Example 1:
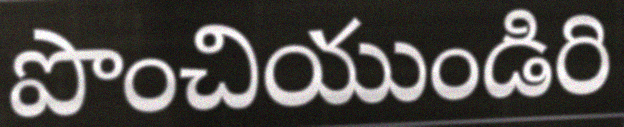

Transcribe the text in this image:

పొంచియుండిరి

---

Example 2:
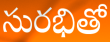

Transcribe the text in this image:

సురభితో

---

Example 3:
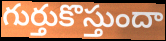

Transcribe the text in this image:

గుర్తుకొస్తుందా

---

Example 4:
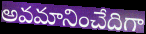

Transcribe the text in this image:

అవమానించేదిగా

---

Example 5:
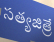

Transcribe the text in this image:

సత్యజిత్రే